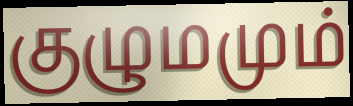
குழுமமும்